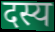
दस्य